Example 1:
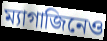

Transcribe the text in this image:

ম্যাগাজিনেও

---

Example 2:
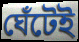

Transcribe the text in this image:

ঘেঁটেই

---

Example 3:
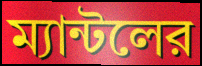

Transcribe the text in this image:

ম্যান্টলের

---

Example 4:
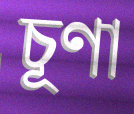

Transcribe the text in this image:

চূণা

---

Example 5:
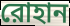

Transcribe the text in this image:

রোহান